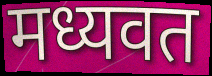
मध्यवत